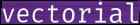
vectorial